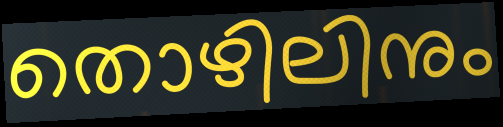
തൊഴിലിനും